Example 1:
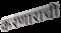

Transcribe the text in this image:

करणाराची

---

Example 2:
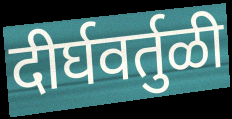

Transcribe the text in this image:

दीर्घवर्तुळी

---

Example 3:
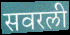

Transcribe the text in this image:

सवरली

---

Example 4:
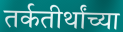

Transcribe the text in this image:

तर्कतीर्थांच्या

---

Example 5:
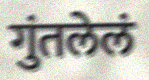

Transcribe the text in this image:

गुंतलेलं